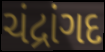
ચંદ્રાંગદ